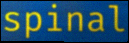
spinal